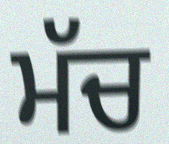
ਮੱਚ